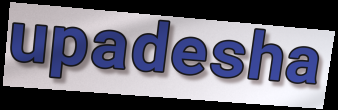
upadesha